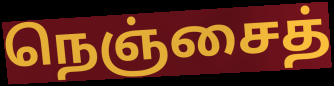
நெஞ்சைத்